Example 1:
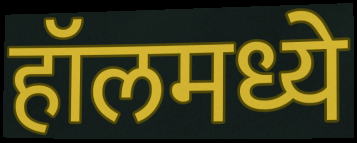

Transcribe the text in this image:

हॉलमध्ये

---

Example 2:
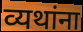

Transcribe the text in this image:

व्यथांना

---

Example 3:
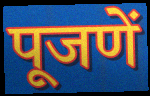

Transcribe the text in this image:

पूजणें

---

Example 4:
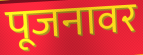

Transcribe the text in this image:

पूजनावर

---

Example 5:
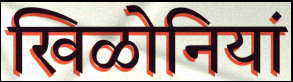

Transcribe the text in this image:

खिळोनियां